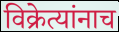
विक्रेत्यांनाच